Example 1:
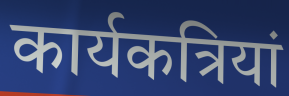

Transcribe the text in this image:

कार्यकत्रियां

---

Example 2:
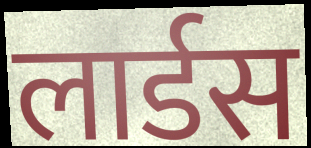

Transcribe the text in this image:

लार्डस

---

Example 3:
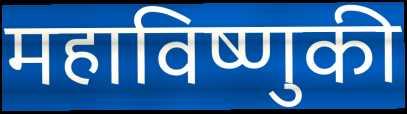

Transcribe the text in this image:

महाविष्णुकी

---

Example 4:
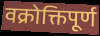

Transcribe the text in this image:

वक्रोक्तिपूर्ण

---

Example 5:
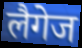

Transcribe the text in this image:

लैगेज